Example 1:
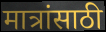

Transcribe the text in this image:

मात्रांसाठी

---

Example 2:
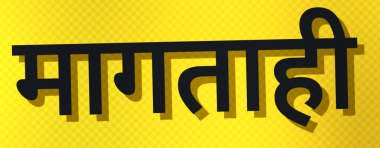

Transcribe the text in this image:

मागताही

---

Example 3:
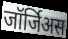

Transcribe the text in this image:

जॉर्जिअस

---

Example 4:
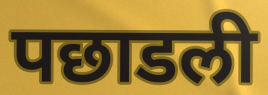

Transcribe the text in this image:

पछाडली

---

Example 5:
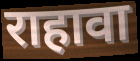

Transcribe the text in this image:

राहावा